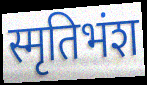
स्मृतिभंश